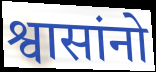
श्वासांनो